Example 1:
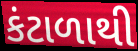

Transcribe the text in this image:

કંટાળાથી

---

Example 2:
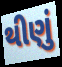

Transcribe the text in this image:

થીણું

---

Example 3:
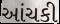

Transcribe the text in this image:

આંચકી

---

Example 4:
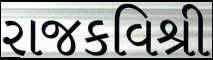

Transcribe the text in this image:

રાજકવિશ્રી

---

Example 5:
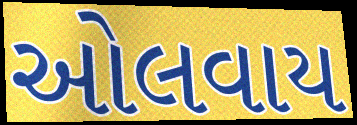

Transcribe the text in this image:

ઓલવાય